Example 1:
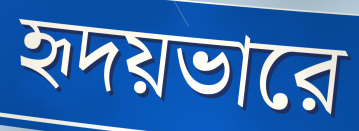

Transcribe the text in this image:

হৃদয়ভারে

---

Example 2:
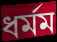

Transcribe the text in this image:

ধর্মম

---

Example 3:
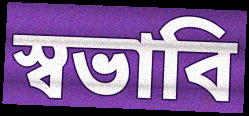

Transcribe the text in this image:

স্বভাবি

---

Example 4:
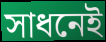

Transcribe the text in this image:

সাধনেই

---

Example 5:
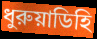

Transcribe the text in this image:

ধুরুয়াডিহি